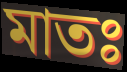
মাতঃ